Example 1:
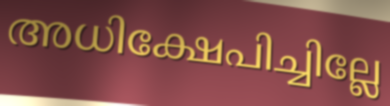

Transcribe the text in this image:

അധിക്ഷേപിച്ചില്ലേ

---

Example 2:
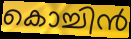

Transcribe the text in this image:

കൊച്ചിൻ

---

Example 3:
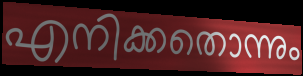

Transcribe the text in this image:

എനിക്കതൊന്നും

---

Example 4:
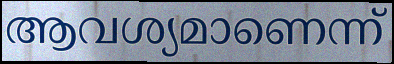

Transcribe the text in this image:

ആവശ്യമാണെന്ന്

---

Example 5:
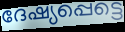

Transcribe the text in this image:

ദേഷ്യപ്പെട്ടെ